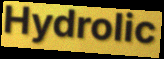
Hydrolic